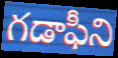
గడాఫీని